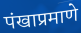
पंखाप्रमाणे